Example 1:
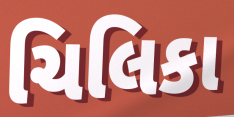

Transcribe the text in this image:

ચિલિકા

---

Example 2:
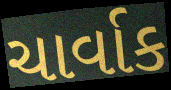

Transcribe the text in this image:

ચાર્વાક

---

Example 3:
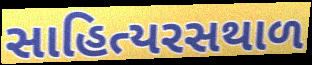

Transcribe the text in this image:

સાહિત્યરસથાળ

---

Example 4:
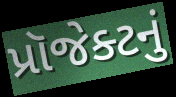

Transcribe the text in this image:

પ્રૉજેક્ટનું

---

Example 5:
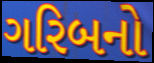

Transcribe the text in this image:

ગરિબનો